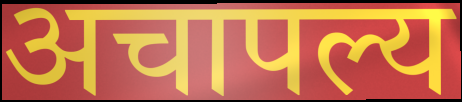
अचापल्य